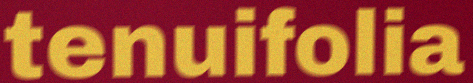
tenuifolia